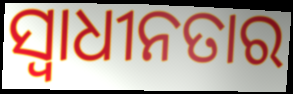
ସ୍ବାଧୀନତାର